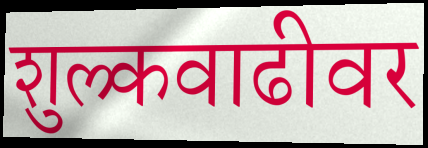
शुल्कवाढीवर